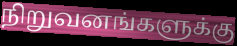
நிறுவனங்களுக்கு